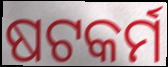
ଷଟକର୍ମ